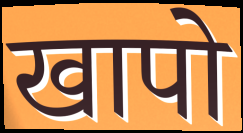
खापो